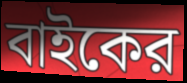
বাইকের